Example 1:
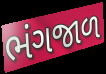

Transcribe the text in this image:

ભંગજાળ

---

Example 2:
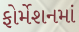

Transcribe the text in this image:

ફોર્મેશનમાં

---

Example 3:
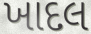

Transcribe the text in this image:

ખાદલ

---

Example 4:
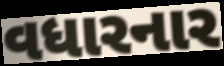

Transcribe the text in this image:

વધારનાર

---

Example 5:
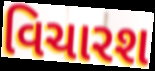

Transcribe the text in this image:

વિચારશ